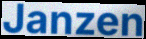
Janzen